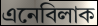
এনেবিলাক